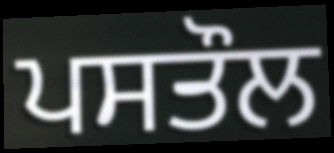
ਪਸਤੌਲ